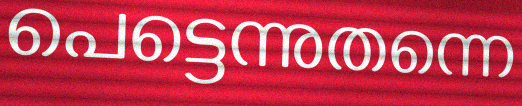
പെട്ടെന്നുതന്നെ